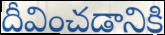
దీవించడానికి